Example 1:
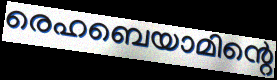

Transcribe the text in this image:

രെഹബെയാമിന്റെ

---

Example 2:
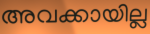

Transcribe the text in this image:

അവക്കായില്ല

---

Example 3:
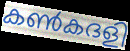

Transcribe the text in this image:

കൺകദളി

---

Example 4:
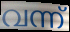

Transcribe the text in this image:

വന്ന്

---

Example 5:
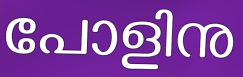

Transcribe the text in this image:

പോളിനു